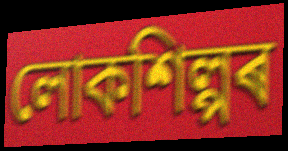
লোকশিল্পৰ